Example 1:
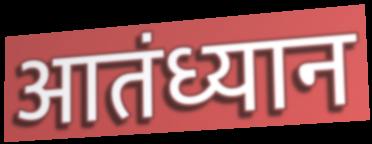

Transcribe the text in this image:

आतंध्यान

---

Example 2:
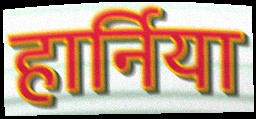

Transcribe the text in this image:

हार्निया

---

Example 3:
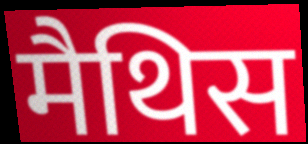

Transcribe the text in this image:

मैथिस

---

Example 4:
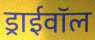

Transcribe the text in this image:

ड्राईवॉल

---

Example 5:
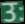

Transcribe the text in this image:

उः